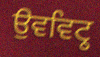
ਉਵਵਿਟ੍ਠ